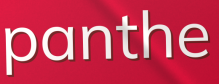
panthe